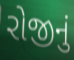
રોજીનું